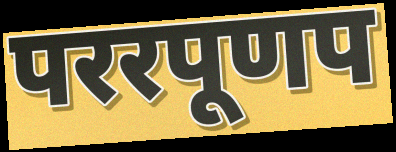
पररपूणप